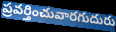
ప్రవర్తించువారగుదురు